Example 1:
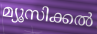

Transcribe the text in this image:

മ്യൂസിക്കൽ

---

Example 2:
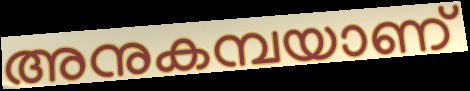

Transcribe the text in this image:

അനുകമ്പയാണ്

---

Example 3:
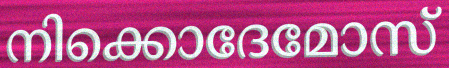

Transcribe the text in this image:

നിക്കൊദേമോസ്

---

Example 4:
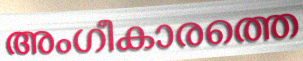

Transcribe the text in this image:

അംഗീകാരത്തെ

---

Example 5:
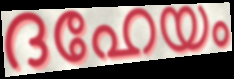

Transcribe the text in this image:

ദഹേയം